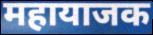
महायाजक